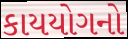
કાયયોગનો